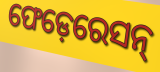
ଫେଡ଼େରେସନ୍